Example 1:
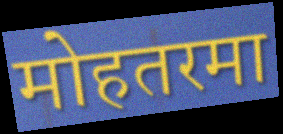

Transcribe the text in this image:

मोहतरमा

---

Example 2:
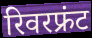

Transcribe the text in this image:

रिवरफ्रंट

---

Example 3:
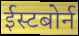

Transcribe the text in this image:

ईस्टबोर्न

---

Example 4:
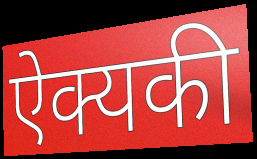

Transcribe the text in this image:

ऐक्यकी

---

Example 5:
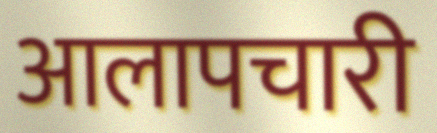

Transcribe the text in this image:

आलापचारी